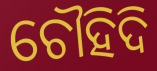
ଚୌହିଦି